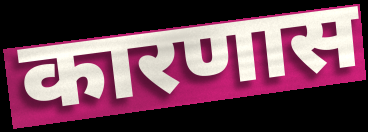
कारणास